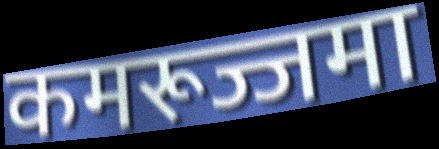
कमरूज्जमा